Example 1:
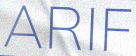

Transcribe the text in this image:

ARIF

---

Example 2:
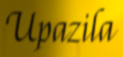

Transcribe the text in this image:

Upazila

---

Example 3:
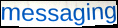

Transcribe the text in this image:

messaging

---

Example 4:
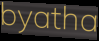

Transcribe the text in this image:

byatha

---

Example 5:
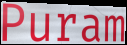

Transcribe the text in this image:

Puram